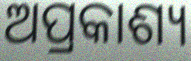
ଅପ୍ରକାଶ୍ୟ